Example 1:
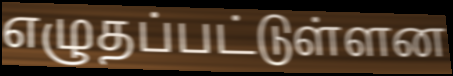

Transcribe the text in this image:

எழுதப்பட்டுள்ளன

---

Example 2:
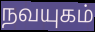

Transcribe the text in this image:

நவயுகம்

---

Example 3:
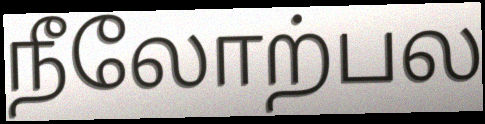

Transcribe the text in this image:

நீலோற்பல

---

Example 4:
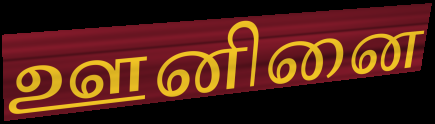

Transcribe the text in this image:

ஊனினை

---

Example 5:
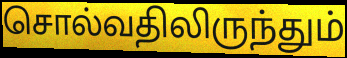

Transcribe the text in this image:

சொல்வதிலிருந்தும்